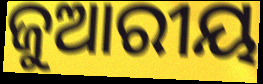
ଜୁଆରୀୟ